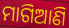
ମାଗିଆଣି